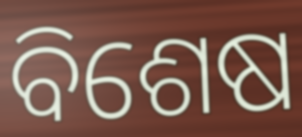
ବିଶେଷ